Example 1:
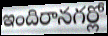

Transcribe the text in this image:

ఇందిరానగర్లో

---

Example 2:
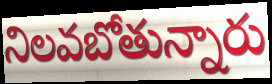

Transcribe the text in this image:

నిలవబోతున్నారు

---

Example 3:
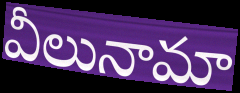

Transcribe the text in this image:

వీలునామా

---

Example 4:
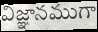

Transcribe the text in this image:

విజ్ఞానముగా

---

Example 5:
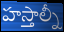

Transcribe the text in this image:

హస్తాల్నీ